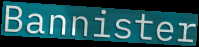
Bannister